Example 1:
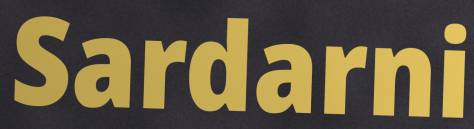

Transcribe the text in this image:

Sardarni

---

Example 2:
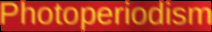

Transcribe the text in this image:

Photoperiodism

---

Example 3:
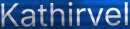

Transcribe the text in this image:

Kathirvel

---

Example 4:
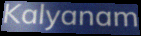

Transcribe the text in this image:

Kalyanam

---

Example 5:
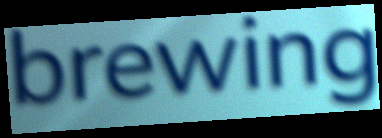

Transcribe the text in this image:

brewing